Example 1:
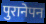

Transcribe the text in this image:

पुरानेपन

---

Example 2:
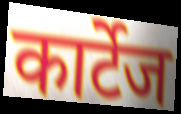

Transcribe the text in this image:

कार्टेज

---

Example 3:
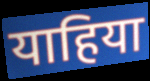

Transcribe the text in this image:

याहिया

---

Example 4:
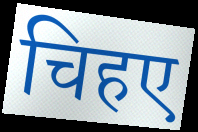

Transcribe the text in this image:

चिहए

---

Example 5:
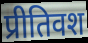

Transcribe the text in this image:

प्रीतिवश